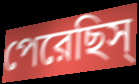
পেরেছিস্